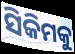
ସିକିମକୁ